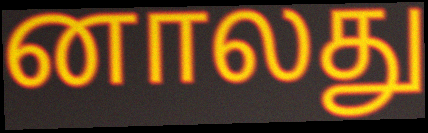
னாலது